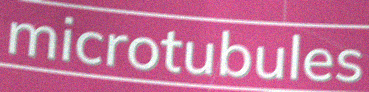
microtubules